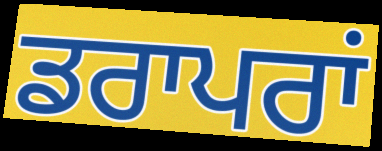
ਡਰਾਪਰਾਂ